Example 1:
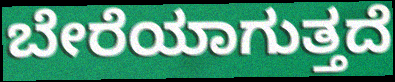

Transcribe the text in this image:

ಬೇರೆಯಾಗುತ್ತದೆ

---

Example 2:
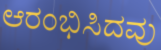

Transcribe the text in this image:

ಆರಂಭಿಸಿದವು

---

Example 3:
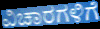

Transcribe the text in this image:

ವಿಚಾರಗಳಿಗೆ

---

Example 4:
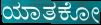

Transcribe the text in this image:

ಯಾತಕೋ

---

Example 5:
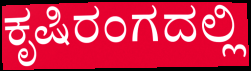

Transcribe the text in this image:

ಕೃಷಿರಂಗದಲ್ಲಿ